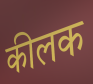
कीलक